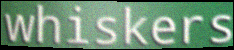
whiskers